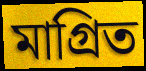
মাগ্রিত